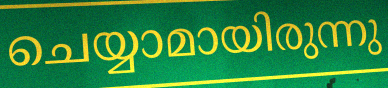
ചെയ്യാമായിരുന്നു